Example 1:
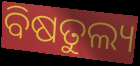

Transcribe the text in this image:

ବିଷତୁଲ୍ୟ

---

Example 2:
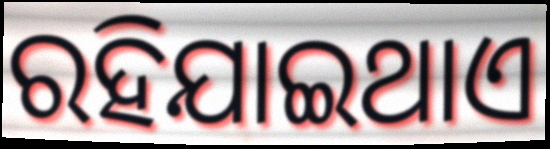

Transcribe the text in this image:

ରହିଯାଇଥାଏ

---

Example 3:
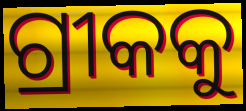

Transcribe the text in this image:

ଗ୍ରୀକକୁ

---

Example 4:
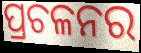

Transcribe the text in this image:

ପ୍ରଚଳନର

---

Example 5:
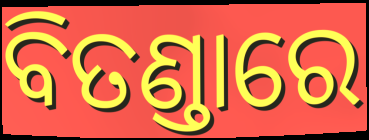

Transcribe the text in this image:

ବିତଣ୍ଡାରେ